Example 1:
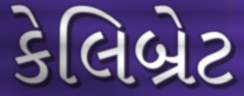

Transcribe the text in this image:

કેલિબ્રેટ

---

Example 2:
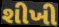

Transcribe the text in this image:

શીખી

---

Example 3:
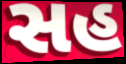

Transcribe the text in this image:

સહ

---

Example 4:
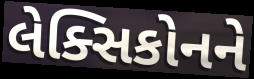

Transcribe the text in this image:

લેક્સિકોનને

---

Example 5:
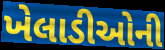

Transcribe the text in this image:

ખેલાડીઓની